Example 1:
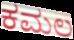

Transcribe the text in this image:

ಕಮಲ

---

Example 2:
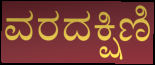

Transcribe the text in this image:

ವರದಕ್ಷಿಣಿ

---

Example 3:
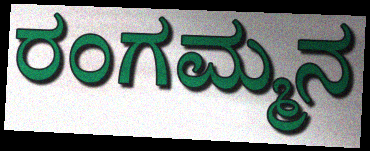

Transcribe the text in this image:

ರಂಗಮ್ಮನ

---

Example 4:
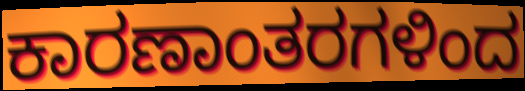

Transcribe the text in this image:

ಕಾರಣಾಂತರಗಳಿಂದ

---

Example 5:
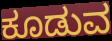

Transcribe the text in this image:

ಕೂಡುವ